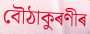
বৌঠাকুৰণীৰ